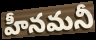
హీనమనీ